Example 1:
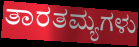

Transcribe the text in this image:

ತಾರತಮ್ಯಗಳು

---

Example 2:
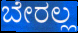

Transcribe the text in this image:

ಬೇರಲ್ಲ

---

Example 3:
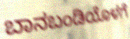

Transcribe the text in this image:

ಬಾನಬಂಡಿಯೊಳಗೆ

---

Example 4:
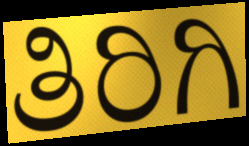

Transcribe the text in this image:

ತಿರಿಗಿ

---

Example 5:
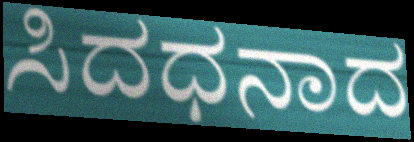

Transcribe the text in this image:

ಸಿದಧನಾದ